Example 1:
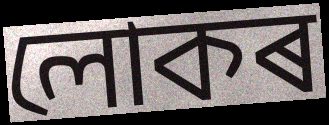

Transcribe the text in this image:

লোকৰ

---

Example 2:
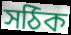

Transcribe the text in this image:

সঠিক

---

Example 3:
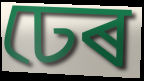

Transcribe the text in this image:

ঢেৰ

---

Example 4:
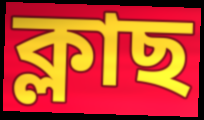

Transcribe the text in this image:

ক্লাছ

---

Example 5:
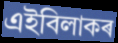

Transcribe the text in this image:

এইবিলাকৰ